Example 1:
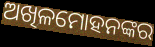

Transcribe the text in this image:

ଅଖିଳମୋହନଙ୍କର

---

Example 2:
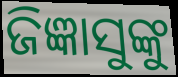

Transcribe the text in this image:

ଜିଜ୍ଞାସୁଙ୍କୁ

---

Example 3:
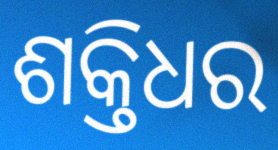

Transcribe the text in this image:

ଶକ୍ତିଧର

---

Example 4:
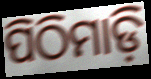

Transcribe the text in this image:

ପିଠିମାଡ଼ି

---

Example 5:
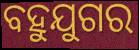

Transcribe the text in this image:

ବହୁଯୁଗର